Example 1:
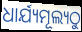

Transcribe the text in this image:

ଧାର୍ଯ୍ୟମୂଲ୍ୟଠୁ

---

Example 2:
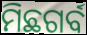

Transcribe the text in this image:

ମିଛଗର୍ବ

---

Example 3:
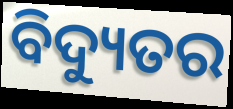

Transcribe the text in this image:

ବିଦ୍ୟୁତର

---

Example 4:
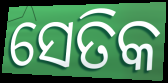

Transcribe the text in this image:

ସେତିକ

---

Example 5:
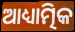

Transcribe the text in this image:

ଆଧ୍ୟାତ୍ମିକ